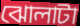
ঝোলাটা